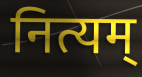
नित्यम्